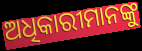
ଅଧିକାରୀମାନଙ୍କୁ